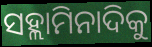
ସହ୍ଲାମିନାଦିକୁ